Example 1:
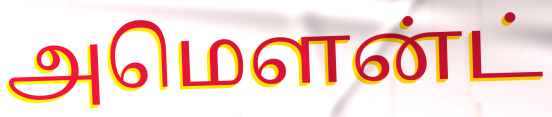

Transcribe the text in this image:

அமௌன்ட்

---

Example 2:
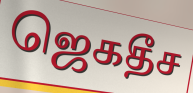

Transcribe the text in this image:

ஜெகதீச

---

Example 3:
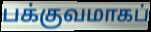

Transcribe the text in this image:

பக்குவமாகப்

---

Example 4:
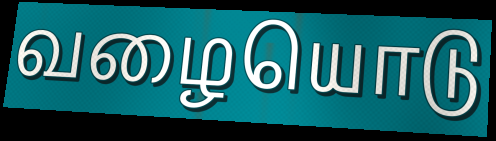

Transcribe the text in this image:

வழையொடு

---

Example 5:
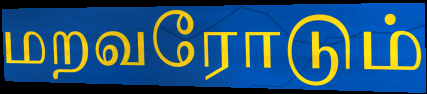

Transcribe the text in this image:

மறவரோடும்